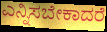
ಎನ್ನಿಸಬೇಕಾದರೆ